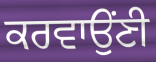
ਕਰਵਾਉਂਣੀ